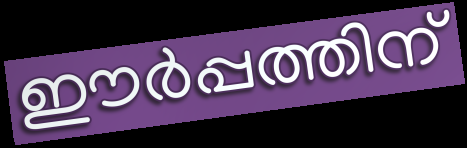
ഈർപ്പത്തിന്